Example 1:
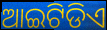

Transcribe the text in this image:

ଆଇଟିଡିଏ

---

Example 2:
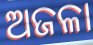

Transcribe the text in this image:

ଅଜଳା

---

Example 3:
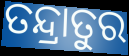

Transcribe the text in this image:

ତନ୍ଦ୍ରାତୁର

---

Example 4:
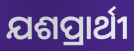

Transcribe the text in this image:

ଯଶପ୍ରାର୍ଥୀ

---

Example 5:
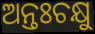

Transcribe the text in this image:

ଅନ୍ତଃଚକ୍ଷୁ